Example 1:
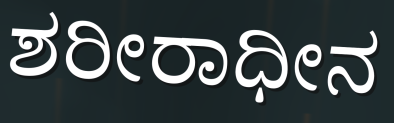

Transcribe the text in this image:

ಶರೀರಾಧೀನ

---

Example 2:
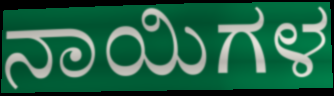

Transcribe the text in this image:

ನಾಯಿಗಳ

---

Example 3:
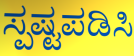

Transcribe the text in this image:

ಸ್ಪಷ್ಟಪಡಿಸಿ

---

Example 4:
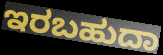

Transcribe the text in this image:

ಇರಬಹುದಾ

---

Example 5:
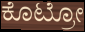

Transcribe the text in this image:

ಕೊಟ್ರೋ